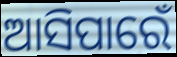
ଆସିପାରେଁ